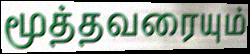
மூத்தவரையும்